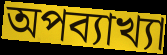
অপব্যাখ্যা